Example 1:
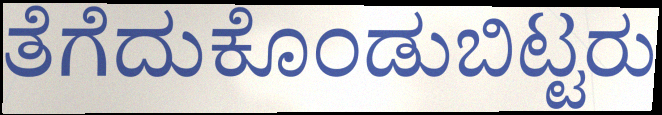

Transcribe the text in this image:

ತೆಗೆದುಕೊಂಡುಬಿಟ್ಟರು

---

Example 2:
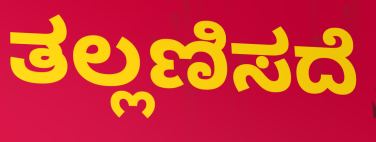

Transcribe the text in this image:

ತಲ್ಲಣಿಸದೆ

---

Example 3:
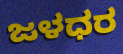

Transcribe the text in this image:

ಜಳಧರ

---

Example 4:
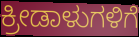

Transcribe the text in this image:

ಕ್ರೀಡಾಳುಗಳಿಗೆ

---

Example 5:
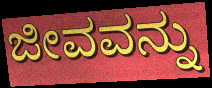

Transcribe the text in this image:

ಜೀವವನ್ನು